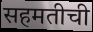
सहमतीची